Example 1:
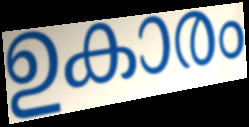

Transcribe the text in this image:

ഉകാരം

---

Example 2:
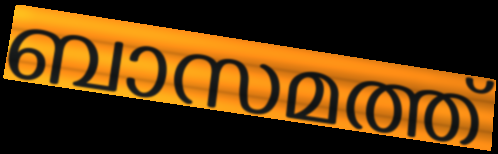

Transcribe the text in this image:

ബാസമത്ത്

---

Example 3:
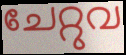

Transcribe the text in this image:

ചേറ്റുവ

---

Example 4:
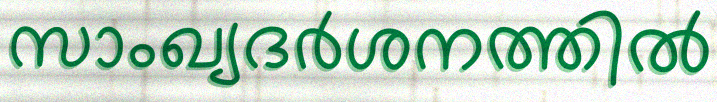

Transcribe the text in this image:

സാംഖ്യദർശനത്തിൽ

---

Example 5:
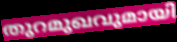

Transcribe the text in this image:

തുറമുഖവുമായി